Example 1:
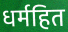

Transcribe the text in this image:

धर्महित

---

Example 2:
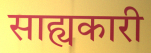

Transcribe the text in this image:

साह्यकारी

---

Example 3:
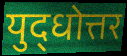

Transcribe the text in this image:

युद्धोत्तर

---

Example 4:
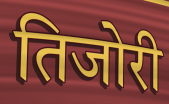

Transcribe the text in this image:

तिजोरी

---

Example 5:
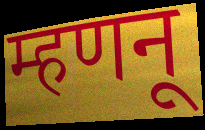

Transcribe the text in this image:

म्हणनू